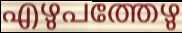
എഴുപത്തേഴു